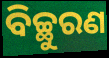
ବିଚ୍ଛୁରଣ